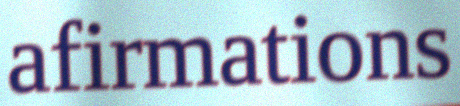
afirmations